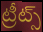
ట్రీట్స్